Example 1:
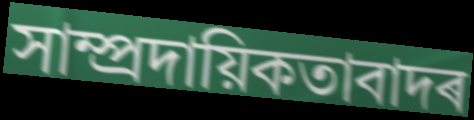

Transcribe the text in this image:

সাম্প্ৰদায়িকতাবাদৰ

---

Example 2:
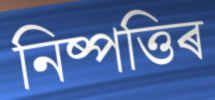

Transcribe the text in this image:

নিষ্পত্তিৰ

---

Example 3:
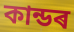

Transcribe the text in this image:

কান্ডৰ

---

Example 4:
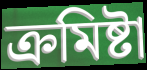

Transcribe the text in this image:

ক্ৰমিষ্টা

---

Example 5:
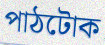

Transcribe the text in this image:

পাঠটোক